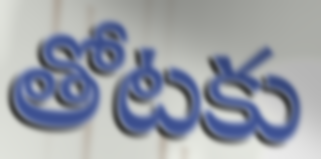
తోటకు